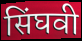
सिंघवी